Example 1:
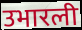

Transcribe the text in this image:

उभारली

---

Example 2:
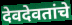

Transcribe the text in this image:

देवदेवतांचे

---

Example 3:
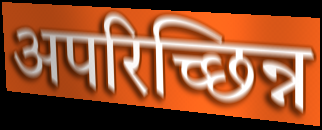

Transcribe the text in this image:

अपरिच्छिन्न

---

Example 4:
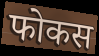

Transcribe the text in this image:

फोकस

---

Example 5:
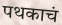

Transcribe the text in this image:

पथकाचं